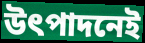
উৎপাদনেই